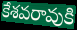
కేశవరావుకి